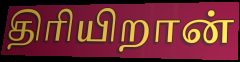
திரியிறான்